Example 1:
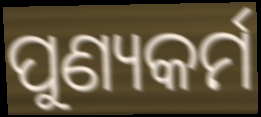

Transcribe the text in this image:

ପୁଣ୍ୟକର୍ମ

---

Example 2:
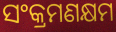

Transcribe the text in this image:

ସଂକ୍ରମଣକ୍ଷମ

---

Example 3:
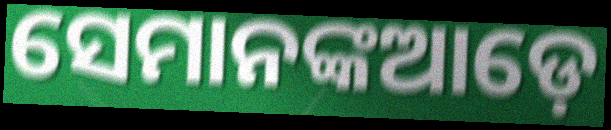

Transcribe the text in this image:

ସେମାନଙ୍କଆଡ଼େ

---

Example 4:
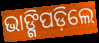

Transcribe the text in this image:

ଭାଙ୍ଗିପଡ଼ିଲେ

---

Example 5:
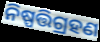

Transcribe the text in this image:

ନିଷ୍ପତ୍ତିଗ୍ରହଣ